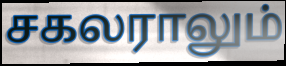
சகலராலும்